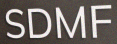
SDMF